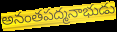
అనంతపద్మనాభుడు